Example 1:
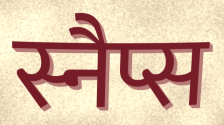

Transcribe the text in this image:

स्नैप्स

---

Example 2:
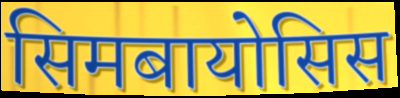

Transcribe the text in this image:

सिमबायोसिस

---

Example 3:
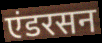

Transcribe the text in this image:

एंडरसन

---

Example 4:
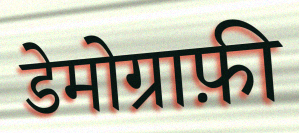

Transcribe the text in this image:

डेमोग्राफ़ी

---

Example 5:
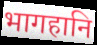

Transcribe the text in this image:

भागहानि